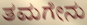
ತಮಗೇನು